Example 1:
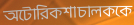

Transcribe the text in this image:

অটোরিকশাচালককে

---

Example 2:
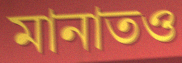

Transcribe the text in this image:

মানাতও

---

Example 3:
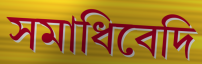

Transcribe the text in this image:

সমাধিবেদি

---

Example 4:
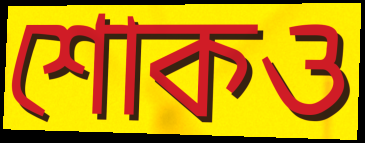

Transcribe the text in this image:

শোকও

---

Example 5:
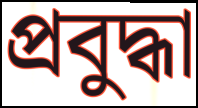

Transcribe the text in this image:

প্রবুদ্ধা